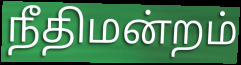
நீதிமன்றம்